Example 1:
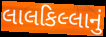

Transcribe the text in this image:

લાલકિલ્લાનું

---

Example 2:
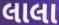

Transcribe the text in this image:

લાલા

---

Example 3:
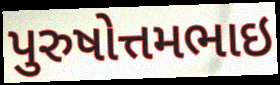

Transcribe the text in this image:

પુરુષોત્તમભાઇ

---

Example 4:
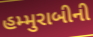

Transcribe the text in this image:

હમ્મુરાબીની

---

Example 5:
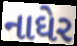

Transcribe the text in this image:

નાઘેર